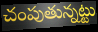
చంపుతున్నట్టు